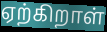
ஏற்கிறாள்